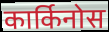
कार्किनोस